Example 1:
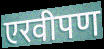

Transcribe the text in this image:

एरवीपण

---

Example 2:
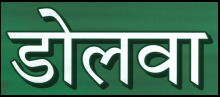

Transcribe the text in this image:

डोलवा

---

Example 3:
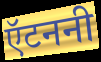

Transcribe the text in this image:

ऍटननी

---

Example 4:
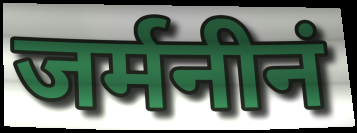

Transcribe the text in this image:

जर्मनीनं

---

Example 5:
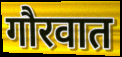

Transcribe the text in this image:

गौरवात